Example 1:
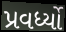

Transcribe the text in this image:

પ્રવર્ધ્યો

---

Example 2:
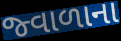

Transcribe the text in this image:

જ્વાળાના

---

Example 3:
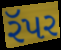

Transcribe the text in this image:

રૅપર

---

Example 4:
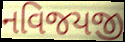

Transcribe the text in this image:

નવિજયજી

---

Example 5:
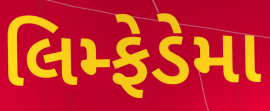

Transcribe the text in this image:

લિમ્ફેડેમા